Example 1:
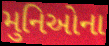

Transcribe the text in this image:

મુનિઓના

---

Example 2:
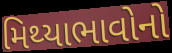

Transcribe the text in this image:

મિથ્યાભાવોનો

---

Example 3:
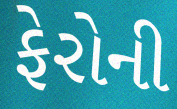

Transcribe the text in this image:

ફેરોની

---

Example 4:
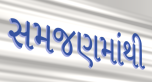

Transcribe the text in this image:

સમજણમાંથી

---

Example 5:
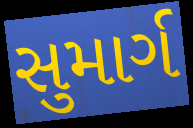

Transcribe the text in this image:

સુમાર્ગ